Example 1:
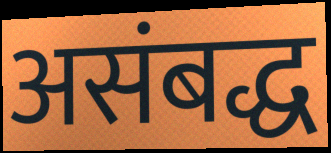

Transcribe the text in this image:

असंबद्ध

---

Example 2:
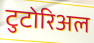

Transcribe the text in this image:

टुटोरिअल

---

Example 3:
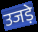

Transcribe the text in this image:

उजड़े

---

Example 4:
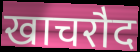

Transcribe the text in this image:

खाचरौद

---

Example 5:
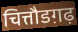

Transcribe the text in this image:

चित्तौडग़ढ़